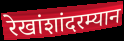
रेखांशांदरम्यान